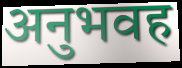
अनुभवह